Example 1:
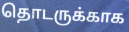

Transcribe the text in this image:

தொடருக்காக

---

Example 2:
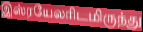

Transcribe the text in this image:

இஸ்ரயேலரிடமிருந்து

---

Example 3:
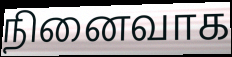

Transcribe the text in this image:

நினைவாக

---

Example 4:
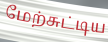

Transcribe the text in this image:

மேற்சுட்டிய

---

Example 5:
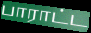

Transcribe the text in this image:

பாராட்ட